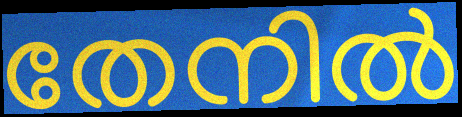
തേനിൽ